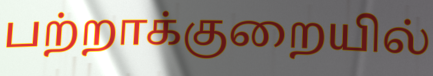
பற்றாக்குறையில்